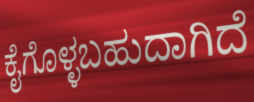
ಕೈಗೊಳ್ಳಬಹುದಾಗಿದೆ